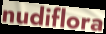
nudiflora